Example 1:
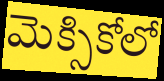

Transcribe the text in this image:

మెక్సికోలో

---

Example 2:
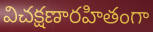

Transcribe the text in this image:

విచక్షణారహితంగా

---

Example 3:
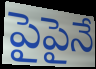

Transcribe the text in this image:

పైపైనే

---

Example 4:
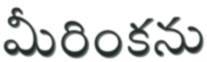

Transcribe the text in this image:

మీరింకను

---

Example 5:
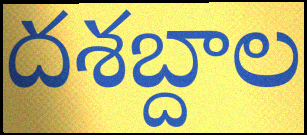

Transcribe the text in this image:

దశబ్దాల